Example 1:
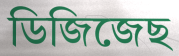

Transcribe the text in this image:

ডিজিজেছ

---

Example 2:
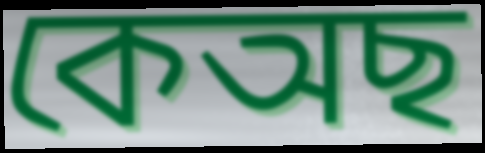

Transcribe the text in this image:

কেঅছ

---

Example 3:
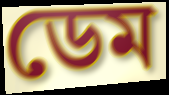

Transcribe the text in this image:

ডেম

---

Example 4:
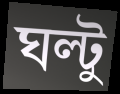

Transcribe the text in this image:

ঘল্টু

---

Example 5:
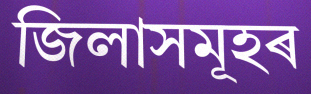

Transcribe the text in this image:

জিলাসমূহৰ